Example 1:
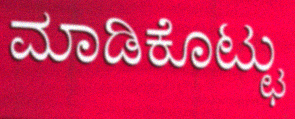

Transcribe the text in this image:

ಮಾಡಿಕೊಟ್ಟು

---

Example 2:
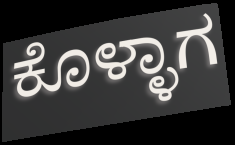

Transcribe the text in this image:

ಕೊಳ್ಳಾಗ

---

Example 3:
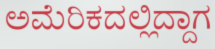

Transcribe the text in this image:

ಅಮೆರಿಕದಲ್ಲಿದ್ದಾಗ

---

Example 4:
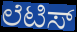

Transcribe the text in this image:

ಲೆಟಿಸ್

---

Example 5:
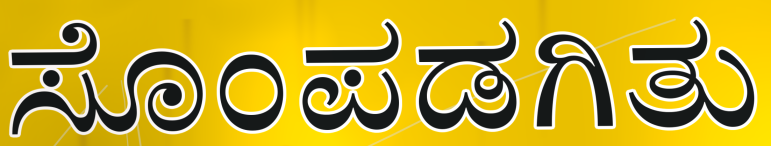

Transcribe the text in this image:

ಸೊಂಪಡಗಿತು